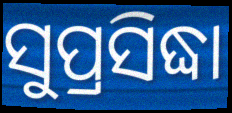
ସୁପ୍ରସିଦ୍ଧା